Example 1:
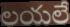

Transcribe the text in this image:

లయలే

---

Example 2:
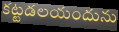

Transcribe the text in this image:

కట్టడలయందును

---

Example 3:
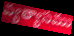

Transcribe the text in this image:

వ్యత్యాసము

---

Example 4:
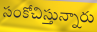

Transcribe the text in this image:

సంకోచిస్తున్నారు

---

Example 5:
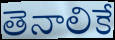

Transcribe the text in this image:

తెనాలికే